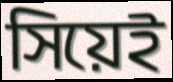
সিয়েই